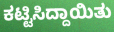
ಕಟ್ಟಿಸಿದ್ದಾಯಿತು